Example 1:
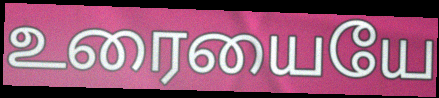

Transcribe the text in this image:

உரையையே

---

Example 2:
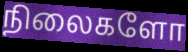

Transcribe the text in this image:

நிலைகளோ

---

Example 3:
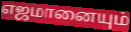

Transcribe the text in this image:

எஜமானையும்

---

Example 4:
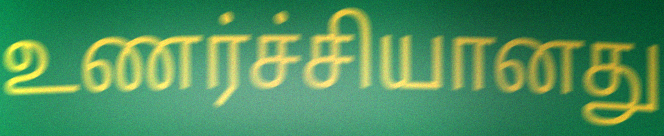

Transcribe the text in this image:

உணர்ச்சியானது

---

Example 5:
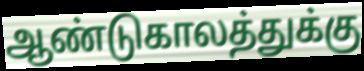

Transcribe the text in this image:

ஆண்டுகாலத்துக்கு